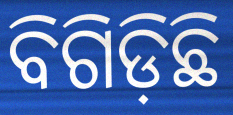
ବିଗିଡ଼ିଛି